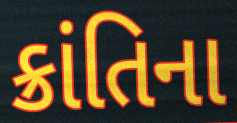
ક્રાંતિના